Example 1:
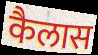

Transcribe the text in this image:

कैलास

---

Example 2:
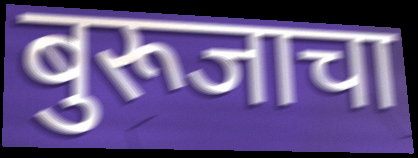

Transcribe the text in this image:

बुरूजाचा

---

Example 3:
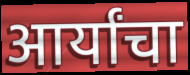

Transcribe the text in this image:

आर्यांचा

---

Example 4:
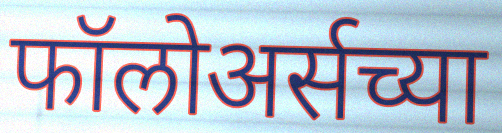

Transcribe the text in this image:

फॉलोअर्सच्या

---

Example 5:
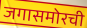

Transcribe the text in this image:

जगासमोरची